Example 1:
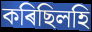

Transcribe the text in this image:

কৰিছিলহি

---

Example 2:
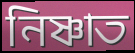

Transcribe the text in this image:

নিষ্ণাত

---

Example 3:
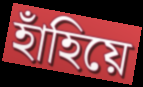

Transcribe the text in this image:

হাঁহিয়ে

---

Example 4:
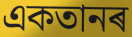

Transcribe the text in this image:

একতানৰ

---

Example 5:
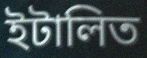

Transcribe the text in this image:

ইটালিত